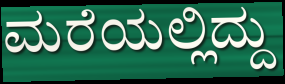
ಮರೆಯಲ್ಲಿದ್ದು